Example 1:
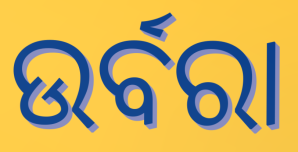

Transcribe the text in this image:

ଉର୍ବରା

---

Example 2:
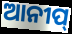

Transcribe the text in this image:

ଆନୀପ୍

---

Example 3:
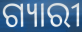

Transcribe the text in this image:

ଗ୍ୟାରୀ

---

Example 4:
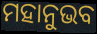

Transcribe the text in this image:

ମହାନୁଭବ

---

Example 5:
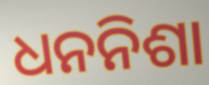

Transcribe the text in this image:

ଧନନିଶା